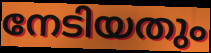
നേടിയതും